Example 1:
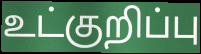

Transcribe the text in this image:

உட்குறிப்பு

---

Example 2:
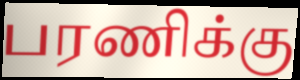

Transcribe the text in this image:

பரணிக்கு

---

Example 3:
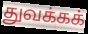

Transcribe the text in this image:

துவக்கக்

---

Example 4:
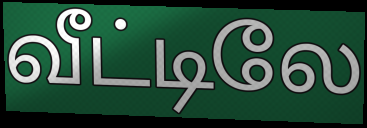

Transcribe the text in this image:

வீட்டிலே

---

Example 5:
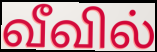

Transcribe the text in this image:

வீவில்